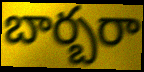
బార్బరా